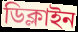
ডিক্লাইন